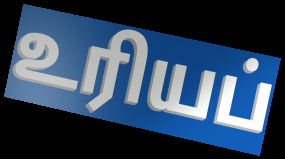
உரியப்